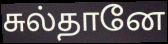
சுல்தானே